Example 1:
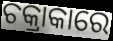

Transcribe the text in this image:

ଚକ୍ରାକାରେ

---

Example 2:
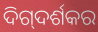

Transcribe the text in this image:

ଦିଗ୍‌ଦର୍ଶକର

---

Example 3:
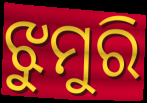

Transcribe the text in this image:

ଝୁମୁରି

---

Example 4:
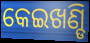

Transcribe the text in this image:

କେଇଖଣ୍ଡି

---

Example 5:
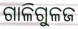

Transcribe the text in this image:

ଗାଳିଗୁଳଜ